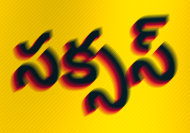
సక్సస్